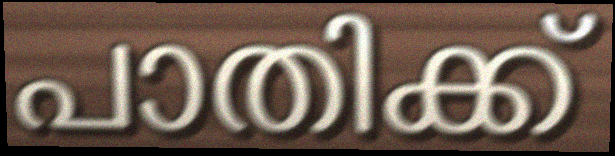
പാതിക്ക്